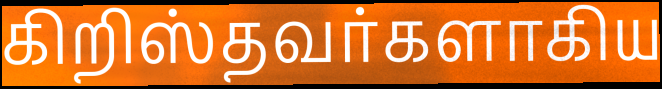
கிறிஸ்தவர்களாகிய